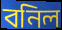
বনিল